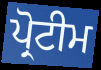
ਪ੍ਰੋਟੀਮ